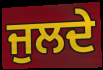
ਜੁਲਦੇ